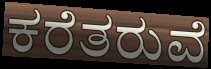
ಕರೆತರುವೆ